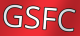
GSFC